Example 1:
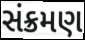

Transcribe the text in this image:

સંક્રમણ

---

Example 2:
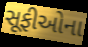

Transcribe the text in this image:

સૂફીઓના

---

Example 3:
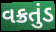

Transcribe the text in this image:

વક્રતુંડ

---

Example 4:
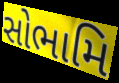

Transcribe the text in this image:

સોભામિ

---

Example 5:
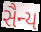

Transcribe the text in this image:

સૈન્ય